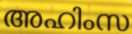
അഹിംസ